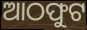
ଆଠଫୁଟ